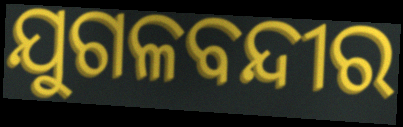
ଯୁଗଳବନ୍ଦୀର